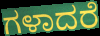
ಗಳಾದರೆ